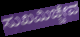
ಸುಖಮಿಚ್ಚೇವ